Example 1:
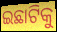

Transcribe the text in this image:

ଇଛାଟିକୁ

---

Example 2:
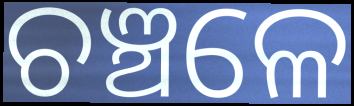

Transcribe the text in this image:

ଚଞ୍ଚଳେ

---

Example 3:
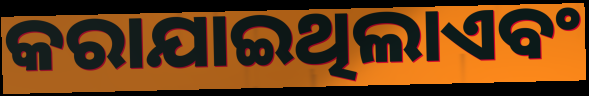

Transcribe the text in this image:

କରାଯାଇଥିଲାଏବଂ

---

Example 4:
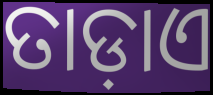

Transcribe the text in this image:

ତାଡ଼ାଏ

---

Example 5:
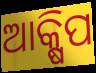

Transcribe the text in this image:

ଆକ୍ଷିପ